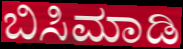
ಬಿಸಿಮಾಡಿ